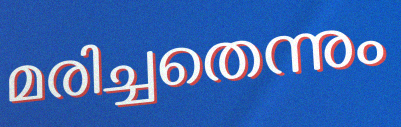
മരിച്ചതെന്നും